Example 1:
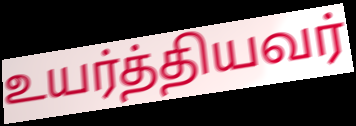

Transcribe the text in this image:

உயர்த்தியவர்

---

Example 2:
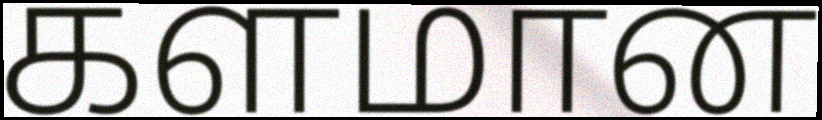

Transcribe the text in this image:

களமான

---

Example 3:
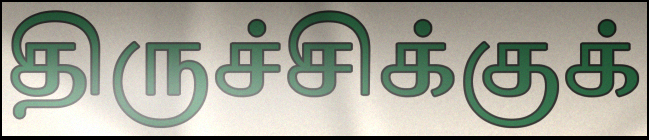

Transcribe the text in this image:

திருச்சிக்குக்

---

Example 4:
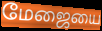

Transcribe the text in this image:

மேஜையை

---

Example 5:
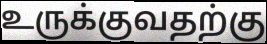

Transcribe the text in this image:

உருக்குவதற்கு